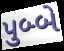
પુબ્બે